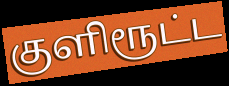
குளிரூட்ட